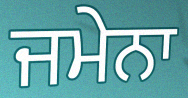
ਜਮੇਨਾ